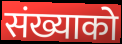
संख्याको